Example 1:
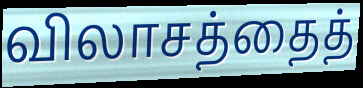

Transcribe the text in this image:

விலாசத்தைத்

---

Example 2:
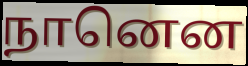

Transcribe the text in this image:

நானென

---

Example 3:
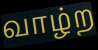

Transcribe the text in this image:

வாழ்ற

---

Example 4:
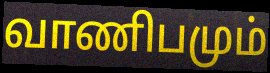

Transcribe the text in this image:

வாணிபமும்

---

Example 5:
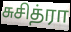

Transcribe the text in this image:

சுசித்ரா